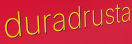
duradrusta